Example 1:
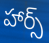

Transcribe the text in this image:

హార్స్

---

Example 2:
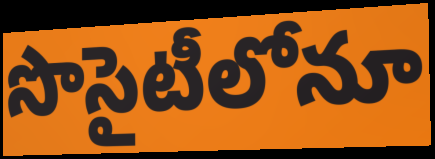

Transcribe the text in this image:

సొసైటీలోనూ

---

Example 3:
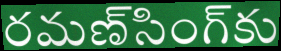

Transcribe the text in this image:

రమణ్‌సింగ్‌కు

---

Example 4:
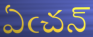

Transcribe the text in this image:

ఏఁచన్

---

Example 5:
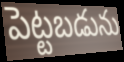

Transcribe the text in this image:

పెట్టబడును